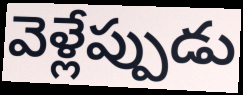
వెళ్లేప్పుడు